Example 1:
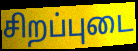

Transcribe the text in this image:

சிறப்புடை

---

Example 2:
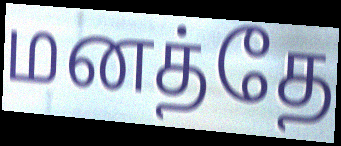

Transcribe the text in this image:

மனத்தே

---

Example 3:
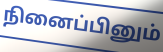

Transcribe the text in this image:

நினைப்பினும்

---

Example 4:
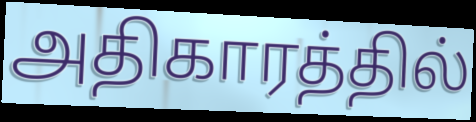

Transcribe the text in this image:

அதிகாரத்தில்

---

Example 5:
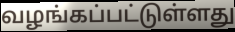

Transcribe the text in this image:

வழங்கப்பட்டுள்ளது